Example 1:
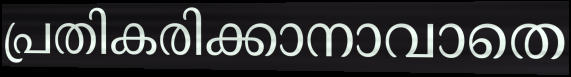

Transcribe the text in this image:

പ്രതികരിക്കാനാവാതെ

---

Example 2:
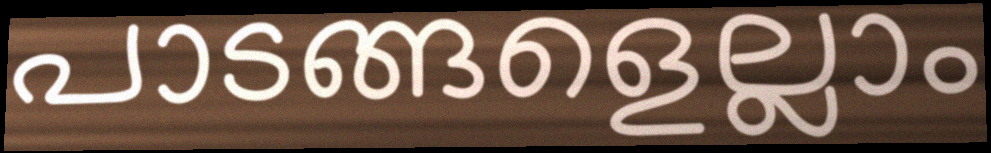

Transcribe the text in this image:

പാടങ്ങളെല്ലാം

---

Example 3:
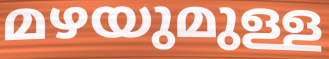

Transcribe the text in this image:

മഴയുമുള്ള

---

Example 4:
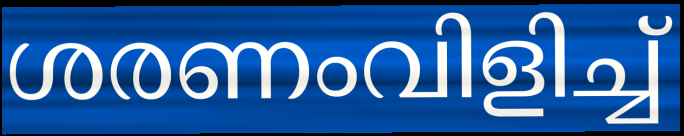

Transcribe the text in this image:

ശരണംവിളിച്ച്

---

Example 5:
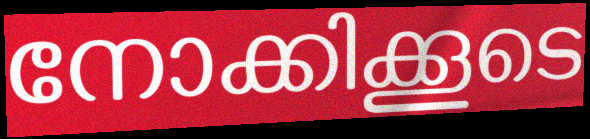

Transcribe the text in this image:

നോക്കിക്കൂടെ